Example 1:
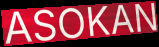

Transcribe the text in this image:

ASOKAN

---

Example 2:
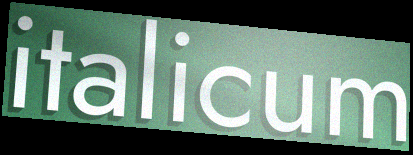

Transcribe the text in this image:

italicum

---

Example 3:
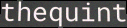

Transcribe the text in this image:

thequint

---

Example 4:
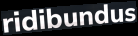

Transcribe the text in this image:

ridibundus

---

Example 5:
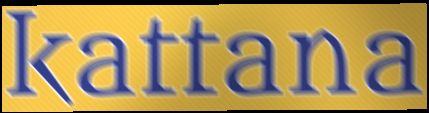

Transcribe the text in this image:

kattana